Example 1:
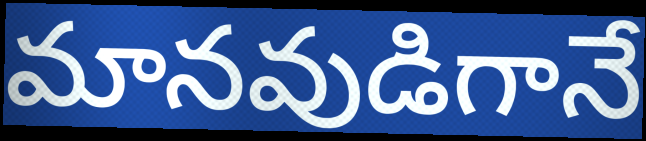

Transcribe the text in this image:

మానవుడిగానే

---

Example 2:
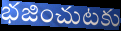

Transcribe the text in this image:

భజించుటకు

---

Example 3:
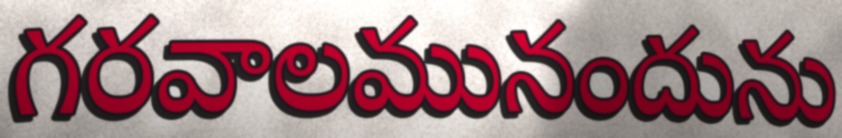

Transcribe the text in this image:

గరవాలమునందును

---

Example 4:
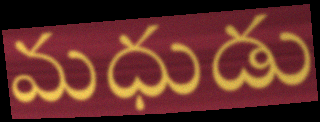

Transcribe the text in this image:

మధుడు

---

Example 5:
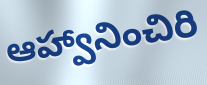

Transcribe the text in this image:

ఆహ్వానించిరి